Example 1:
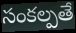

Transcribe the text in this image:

సంకల్పతే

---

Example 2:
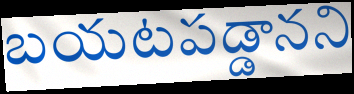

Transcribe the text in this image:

బయటపడ్డానని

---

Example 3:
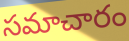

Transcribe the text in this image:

సమాచారం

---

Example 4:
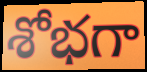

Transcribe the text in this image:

శోభగా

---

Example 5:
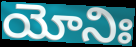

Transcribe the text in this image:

యోనిః